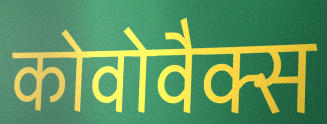
कोवोवैक्स